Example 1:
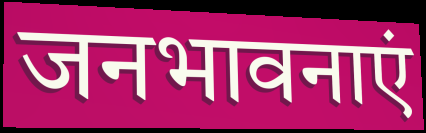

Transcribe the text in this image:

जनभावनाएं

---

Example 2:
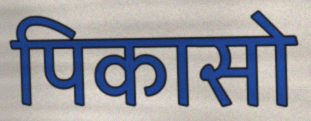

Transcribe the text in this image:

पिकासो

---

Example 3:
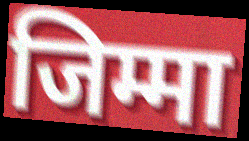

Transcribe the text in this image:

जिम्मा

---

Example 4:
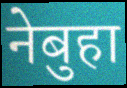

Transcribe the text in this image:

नेबुहा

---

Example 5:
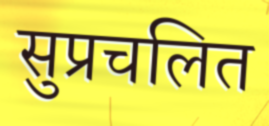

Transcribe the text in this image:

सुप्रचलित